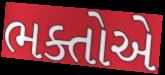
ભક્તોએ